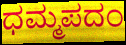
ಧಮ್ಮಪದಂ